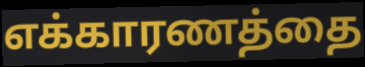
எக்காரணத்தை